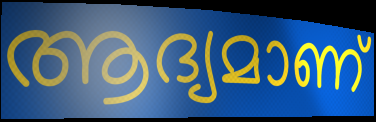
ആദ്യമാണ്